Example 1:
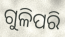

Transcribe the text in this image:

ଗୁଳିପରି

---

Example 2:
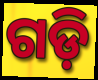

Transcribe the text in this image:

ଗଡ଼ି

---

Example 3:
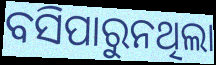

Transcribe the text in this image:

ବସିପାରୁନଥିଲା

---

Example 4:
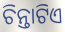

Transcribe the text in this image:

ଚିନ୍ତାଟିଏ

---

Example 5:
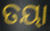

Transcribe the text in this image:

ତୟା